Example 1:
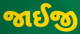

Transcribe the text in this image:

જાઈજી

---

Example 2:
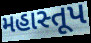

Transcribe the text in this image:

મહાસ્તૂપ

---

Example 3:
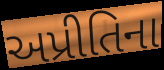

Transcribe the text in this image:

અપ્રીતિના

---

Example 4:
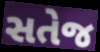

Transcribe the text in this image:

સતેજ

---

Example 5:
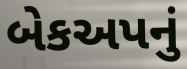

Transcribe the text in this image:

બેકઅપનું